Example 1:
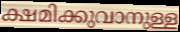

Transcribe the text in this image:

ക്ഷമിക്കുവാനുള്ള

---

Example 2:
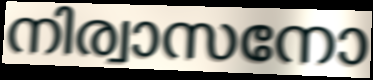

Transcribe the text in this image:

നിര്വാസനോ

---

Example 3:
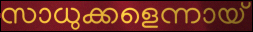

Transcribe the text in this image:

സാധുക്കളെന്നായ്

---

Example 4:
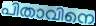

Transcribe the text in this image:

പിതാവിനെ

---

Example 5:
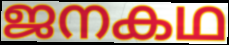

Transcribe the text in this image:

ജനകഥ